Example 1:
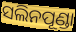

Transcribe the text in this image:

ସଲିନପୂଣ୍ଡା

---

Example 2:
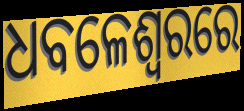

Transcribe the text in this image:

ଧବଳେଶ୍ଵରରେ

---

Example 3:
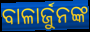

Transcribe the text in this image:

ବାଳାର୍ଜୁନଙ୍କ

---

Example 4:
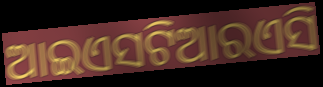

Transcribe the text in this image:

ଆଇଏସଟିଆରଏସି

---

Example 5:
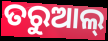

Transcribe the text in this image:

ତରୁଆଲ୍